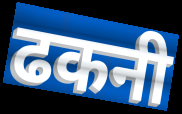
ढकनी